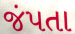
જંપતા